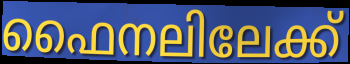
ഫൈനലിലേക്ക്